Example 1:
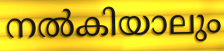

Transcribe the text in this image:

നൽകിയാലും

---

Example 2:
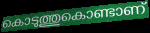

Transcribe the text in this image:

കൊടുത്തുകൊണ്ടാണ്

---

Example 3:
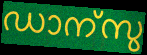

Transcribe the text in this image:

ഡാന്സു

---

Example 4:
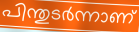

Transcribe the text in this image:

പിന്തുടർന്നാണ്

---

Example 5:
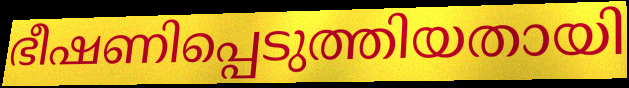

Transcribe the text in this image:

ഭീഷണിപ്പെടുത്തിയതായി